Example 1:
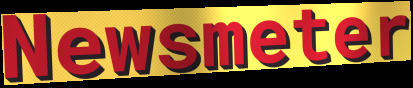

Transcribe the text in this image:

Newsmeter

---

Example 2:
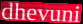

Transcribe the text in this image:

dhevuni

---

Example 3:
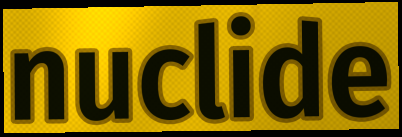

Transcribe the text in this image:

nuclide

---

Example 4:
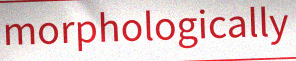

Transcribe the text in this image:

morphologically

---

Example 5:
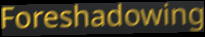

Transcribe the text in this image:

Foreshadowing